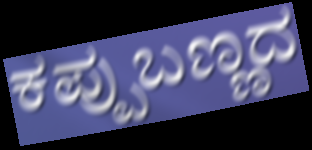
ಕಪ್ಪುಬಣ್ಣದ